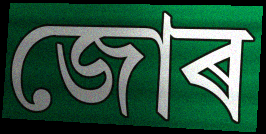
জোৰ